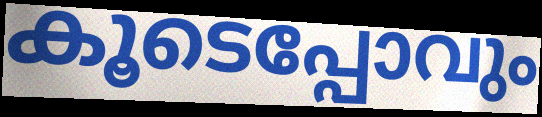
കൂടെപ്പോവും